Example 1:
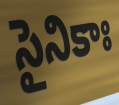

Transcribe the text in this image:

సైనికాః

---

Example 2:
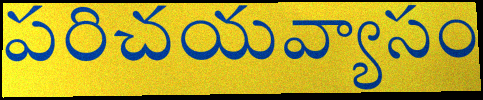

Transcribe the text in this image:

పరిచయవ్యాసం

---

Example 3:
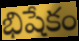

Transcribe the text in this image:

భిషేకం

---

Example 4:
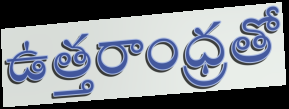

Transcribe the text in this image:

ఉత్తరాంధ్రతో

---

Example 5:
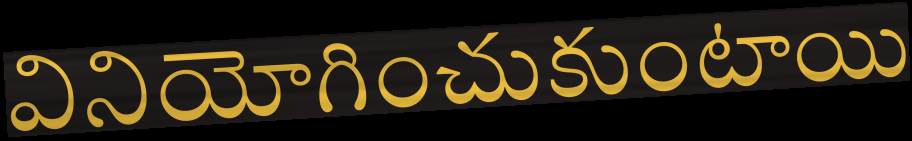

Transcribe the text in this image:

వినియోగించుకుంటాయి